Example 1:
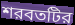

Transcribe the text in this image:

শরবতটির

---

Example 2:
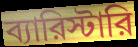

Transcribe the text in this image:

ব্যারিস্টারি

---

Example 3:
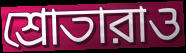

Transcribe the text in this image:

শ্রোতারাও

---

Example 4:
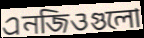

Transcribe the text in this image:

এনজিওগুলো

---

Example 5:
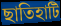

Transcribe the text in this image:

ছাতিহাটি